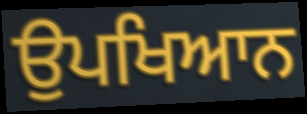
ਉਪਖਿਆਨ